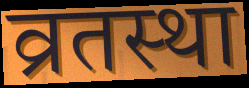
व्रतस्था